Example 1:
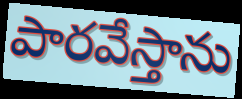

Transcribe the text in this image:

పారవేస్తాను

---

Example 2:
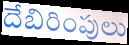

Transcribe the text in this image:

దేబిరింపులు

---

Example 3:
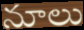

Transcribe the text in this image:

నూలు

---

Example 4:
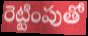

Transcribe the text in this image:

రెట్టింపుతో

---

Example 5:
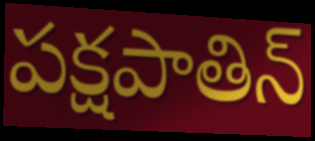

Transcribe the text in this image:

పక్షపాతిన్